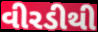
વીરડીથી